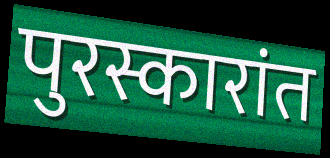
पुरस्कारांत